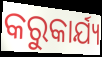
କରୁକାର୍ଯ୍ୟ